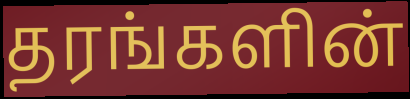
தரங்களின்